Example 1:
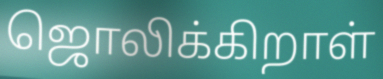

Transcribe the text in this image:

ஜொலிக்கிறாள்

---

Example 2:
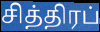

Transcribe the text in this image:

சித்திரப்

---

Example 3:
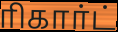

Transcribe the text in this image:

ரிகார்ட்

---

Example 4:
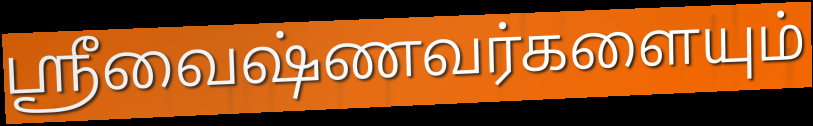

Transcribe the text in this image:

ஸ்ரீவைஷ்ணவர்களையும்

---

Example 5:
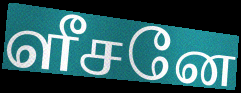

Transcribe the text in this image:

ளீசனே